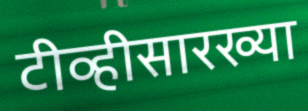
टीव्हीसारख्या